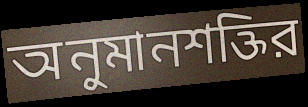
অনুমানশক্তির